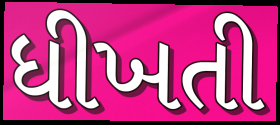
ધીખતી